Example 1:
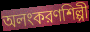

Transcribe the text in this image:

অলংকরণশিল্পী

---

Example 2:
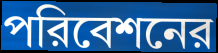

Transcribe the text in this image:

পরিবেশনের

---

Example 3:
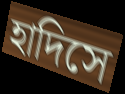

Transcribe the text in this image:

হাদিসে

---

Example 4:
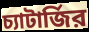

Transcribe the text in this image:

চ্যাটার্জির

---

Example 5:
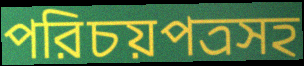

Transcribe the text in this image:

পরিচয়পত্রসহ